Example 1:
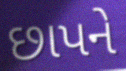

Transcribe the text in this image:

છાપને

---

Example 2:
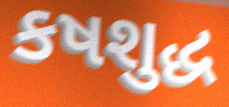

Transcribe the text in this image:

કષશુદ્ધ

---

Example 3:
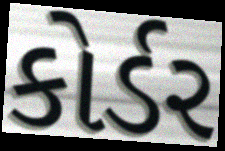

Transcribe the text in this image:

કોર્ડર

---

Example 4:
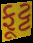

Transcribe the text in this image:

ફૂટ્ટ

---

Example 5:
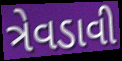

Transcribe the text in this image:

ત્રેવડાવી